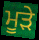
ਮੂੜੇ